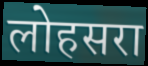
लोहसरा